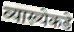
व्याख्येकडे